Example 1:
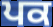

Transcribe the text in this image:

ਪਕ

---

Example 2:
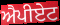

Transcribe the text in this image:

ਐਪੀਏਟ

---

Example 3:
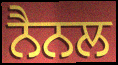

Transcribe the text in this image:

ਨੈਨਲ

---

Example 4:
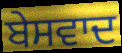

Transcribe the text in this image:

ਬੇਸਵਾਦ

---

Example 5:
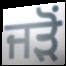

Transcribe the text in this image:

ਜੜੋਂ